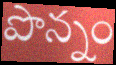
పొన్నం